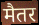
मैतर